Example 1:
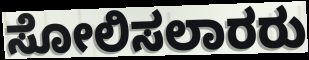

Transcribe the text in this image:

ಸೋಲಿಸಲಾರರು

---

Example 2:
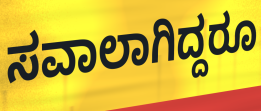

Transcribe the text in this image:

ಸವಾಲಾಗಿದ್ದರೂ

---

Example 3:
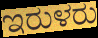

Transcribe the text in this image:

ಇರುಳರು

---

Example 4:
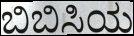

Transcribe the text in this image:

ಬಿಬಿಸಿಯ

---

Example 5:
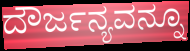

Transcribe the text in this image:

ದೌರ್ಜನ್ಯವನ್ನೂ